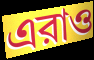
এরাও